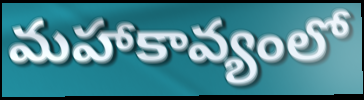
మహాకావ్యంలో